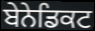
ਬੇਨੇਡਿਕਟ